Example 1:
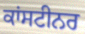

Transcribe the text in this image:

ਕਾਂਸਟੀਨਰ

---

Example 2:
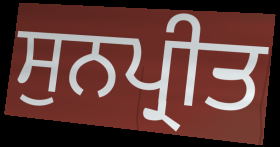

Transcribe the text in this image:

ਸੁਨਪ੍ਰੀਤ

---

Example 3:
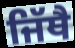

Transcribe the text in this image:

ਜਿੱਥੈ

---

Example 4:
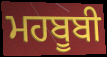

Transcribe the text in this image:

ਮਹਬੂਬੀ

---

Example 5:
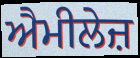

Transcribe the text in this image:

ਐਮੀਲੇਜ਼